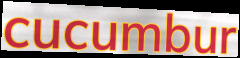
cucumbur